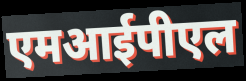
एमआईपीएल